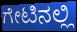
ಗೇಟಿನಲ್ಲಿ